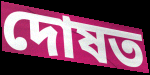
দোষত